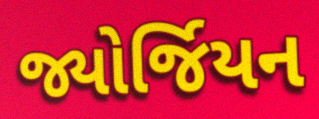
જ્યોર્જિયન